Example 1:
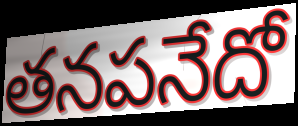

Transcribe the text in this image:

తనపనేదో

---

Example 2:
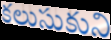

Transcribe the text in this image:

కలుసుకుని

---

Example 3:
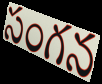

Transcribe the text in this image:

సంగన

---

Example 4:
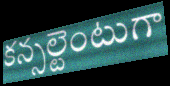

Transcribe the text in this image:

కన్సల్టెంటుగా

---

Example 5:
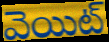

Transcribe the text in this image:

వెయిట్